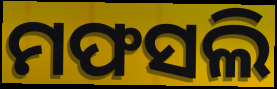
ମଫସଲି